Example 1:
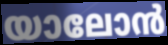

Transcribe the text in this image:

യാലോൻ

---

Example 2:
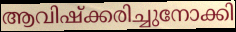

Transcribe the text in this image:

ആവിഷ്ക്കരിച്ചുനോക്കി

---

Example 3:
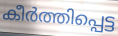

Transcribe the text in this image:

കീർത്തിപ്പെട്ട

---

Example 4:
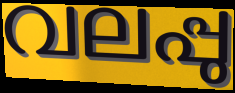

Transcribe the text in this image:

വലപ്പു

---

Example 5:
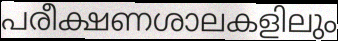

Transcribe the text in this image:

പരീക്ഷണശാലകളിലും